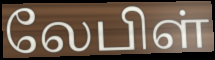
லேபிள்